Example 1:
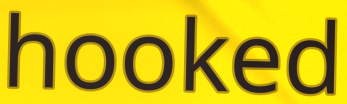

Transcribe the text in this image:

hooked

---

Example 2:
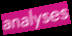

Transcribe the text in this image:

analyses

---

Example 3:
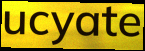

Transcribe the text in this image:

ucyate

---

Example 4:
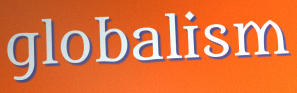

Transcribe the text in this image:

globalism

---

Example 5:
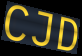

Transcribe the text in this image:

CJD